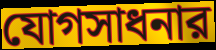
যোগসাধনার